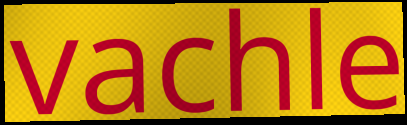
vachle